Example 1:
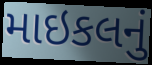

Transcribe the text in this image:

માઇકલનું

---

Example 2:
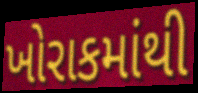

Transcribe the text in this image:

ખોરાકમાંથી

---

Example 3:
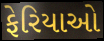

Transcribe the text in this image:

ફેરિયાઓ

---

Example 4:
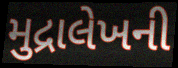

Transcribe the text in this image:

મુદ્રાલેખની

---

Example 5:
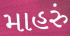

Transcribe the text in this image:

માહરું